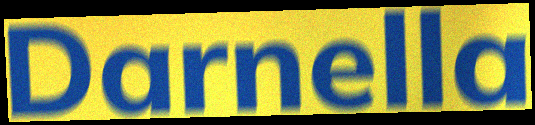
Darnella